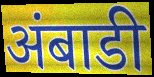
अंबाडी